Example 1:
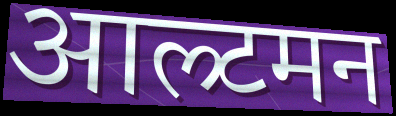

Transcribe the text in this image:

आल्टमन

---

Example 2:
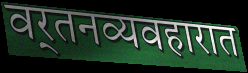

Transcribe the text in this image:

वर्तनव्यवहारात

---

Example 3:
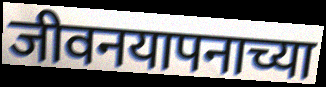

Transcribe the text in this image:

जीवनयापनाच्या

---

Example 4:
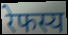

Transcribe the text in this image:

रेफस्य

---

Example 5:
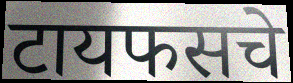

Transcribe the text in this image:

टायफसचे